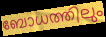
ബോധത്തിലും